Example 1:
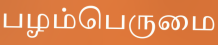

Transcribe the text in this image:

பழம்பெருமை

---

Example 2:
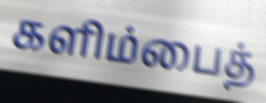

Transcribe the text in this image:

களிம்பைத்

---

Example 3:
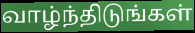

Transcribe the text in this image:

வாழ்ந்திடுங்கள்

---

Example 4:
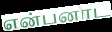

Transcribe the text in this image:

என்பனாட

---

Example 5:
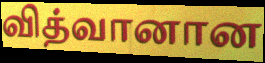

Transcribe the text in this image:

வித்வானான